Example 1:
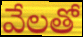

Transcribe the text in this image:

వేలతో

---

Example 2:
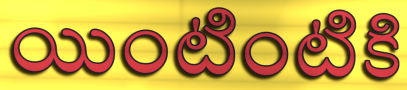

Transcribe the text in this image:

యింటింటికి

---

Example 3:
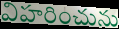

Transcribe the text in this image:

విహరించును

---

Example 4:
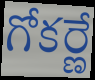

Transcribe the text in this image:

గోకర్ణే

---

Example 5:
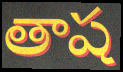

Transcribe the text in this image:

తాష